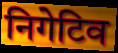
निगेटिव